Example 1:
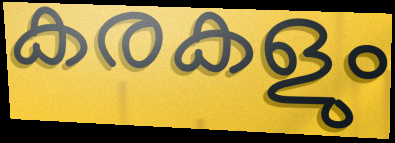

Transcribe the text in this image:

കരകളും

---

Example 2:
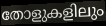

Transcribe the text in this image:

തോളുകളിലും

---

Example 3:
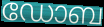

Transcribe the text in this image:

ഡോബ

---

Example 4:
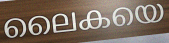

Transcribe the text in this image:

ലൈകയെ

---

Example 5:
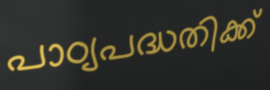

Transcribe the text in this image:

പാഠ്യപദ്ധതിക്ക്